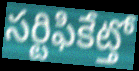
సర్టిఫికేట్తో